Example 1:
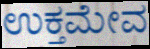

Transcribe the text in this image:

ಉಕ್ತಮೇವ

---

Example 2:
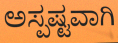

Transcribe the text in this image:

ಅಸ್ಪಷ್ಟವಾಗಿ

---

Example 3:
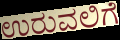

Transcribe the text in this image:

ಉರುವಲಿಗೆ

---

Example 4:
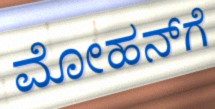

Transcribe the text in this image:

ಮೋಹನ್‌ಗೆ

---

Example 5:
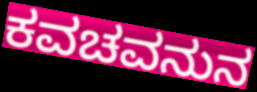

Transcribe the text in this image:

ಕವಚವನುನ